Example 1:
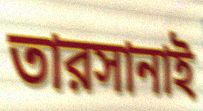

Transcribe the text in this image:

তারসানাই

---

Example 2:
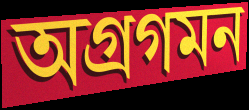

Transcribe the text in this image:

অগ্রগমন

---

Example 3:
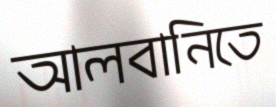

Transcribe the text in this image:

আলবানিতে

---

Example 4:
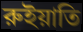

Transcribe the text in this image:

রুইয়াতি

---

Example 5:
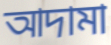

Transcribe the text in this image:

আদামা